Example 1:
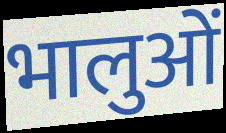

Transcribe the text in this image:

भालुओं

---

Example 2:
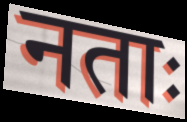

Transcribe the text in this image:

नताः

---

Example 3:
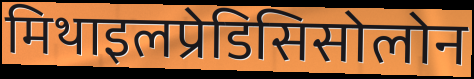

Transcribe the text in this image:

मिथाइलप्रेडिसिसोलोन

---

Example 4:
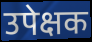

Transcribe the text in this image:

उपेक्षक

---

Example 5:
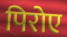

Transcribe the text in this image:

पिरोए